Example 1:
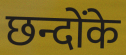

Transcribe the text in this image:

छन्दोंके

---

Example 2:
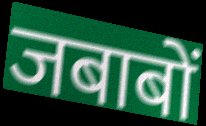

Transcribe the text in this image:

जबाबों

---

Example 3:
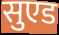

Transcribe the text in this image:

सुएड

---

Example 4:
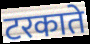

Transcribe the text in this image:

टरकाते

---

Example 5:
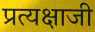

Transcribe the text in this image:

प्रत्यक्षाजी